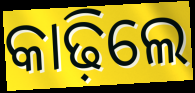
କାଢ଼ିଲେ